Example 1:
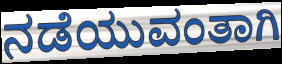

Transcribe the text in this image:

ನಡೆಯುವಂತಾಗಿ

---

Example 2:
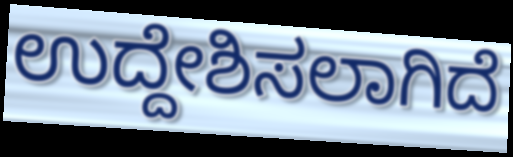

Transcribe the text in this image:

ಉದ್ದೇಶಿಸಲಾಗಿದೆ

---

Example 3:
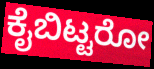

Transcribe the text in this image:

ಕೈಬಿಟ್ಟರೋ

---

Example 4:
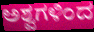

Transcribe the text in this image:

ಅಶ್ವಗಳಿಂದ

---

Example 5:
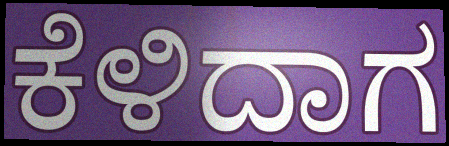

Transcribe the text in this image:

ಕೆಳಿದಾಗ